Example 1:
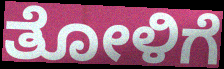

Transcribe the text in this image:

ತೋಳಿಗೆ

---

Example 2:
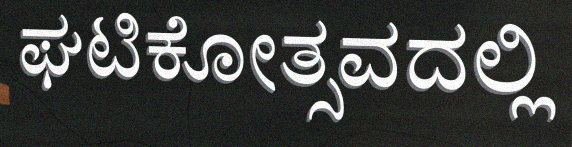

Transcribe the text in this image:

ಘಟಿಕೋತ್ಸವದಲ್ಲಿ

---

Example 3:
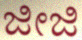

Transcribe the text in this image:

ಜೀಜಿ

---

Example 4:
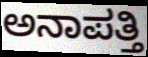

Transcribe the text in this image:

ಅನಾಪತ್ತಿ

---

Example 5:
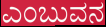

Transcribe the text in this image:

ಎಂಬುವನ